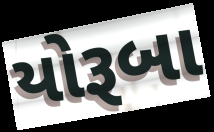
યોરૂબા